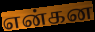
என்கன